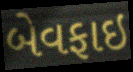
બેવફાઇ